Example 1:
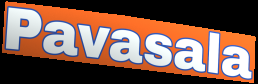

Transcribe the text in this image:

Pavasala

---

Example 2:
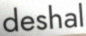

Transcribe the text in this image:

deshal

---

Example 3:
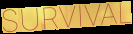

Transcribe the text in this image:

SURVIVAL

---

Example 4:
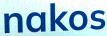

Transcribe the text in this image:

nakos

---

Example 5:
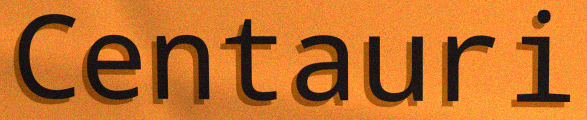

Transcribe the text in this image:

Centauri